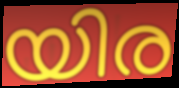
യിര